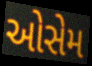
ઓસેમ